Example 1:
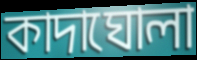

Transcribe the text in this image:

কাদাঘোলা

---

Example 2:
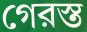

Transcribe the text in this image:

গেরস্ত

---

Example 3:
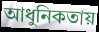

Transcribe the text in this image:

আধুনিকতায়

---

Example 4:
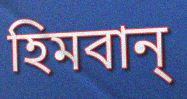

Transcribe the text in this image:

হিমবান্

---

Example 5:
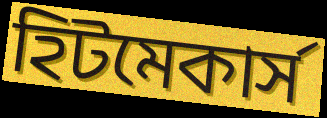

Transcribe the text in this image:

হিটমেকার্স